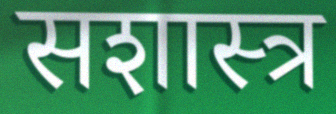
सशास्त्र